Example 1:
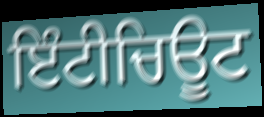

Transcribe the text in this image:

ਇੰਟੀਚਿਊਟ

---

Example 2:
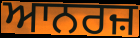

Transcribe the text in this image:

ਆਨਰਜ਼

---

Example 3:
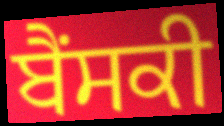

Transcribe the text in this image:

ਬੈਂਸਕੀ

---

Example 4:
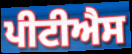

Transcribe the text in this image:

ਪੀਟੀਐਸ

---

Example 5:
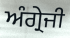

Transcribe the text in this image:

ਅੰਗ੍ਰੇਜੀ